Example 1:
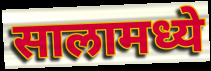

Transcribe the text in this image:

सालामध्ये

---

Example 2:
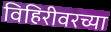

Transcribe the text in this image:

विहिरीवरच्या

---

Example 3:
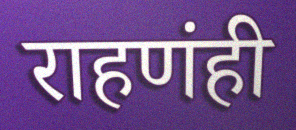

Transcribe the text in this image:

राहणंही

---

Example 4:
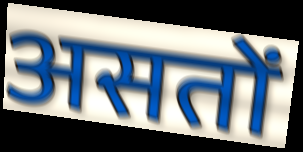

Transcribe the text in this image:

असतों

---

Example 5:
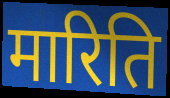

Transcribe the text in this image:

मारिति